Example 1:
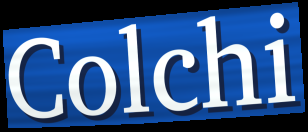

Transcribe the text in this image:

Colchi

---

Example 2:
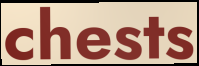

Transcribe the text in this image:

chests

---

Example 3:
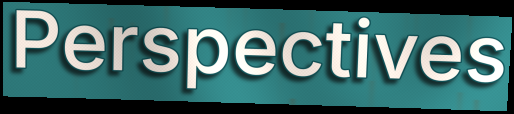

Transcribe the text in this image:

Perspectives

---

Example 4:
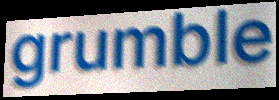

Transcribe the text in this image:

grumble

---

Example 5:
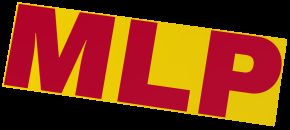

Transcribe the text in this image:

MLP